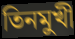
তিনমুখী